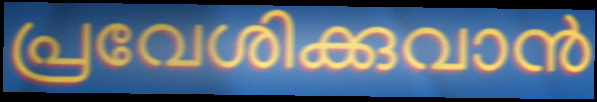
പ്രവേശിക്കുവാൻ